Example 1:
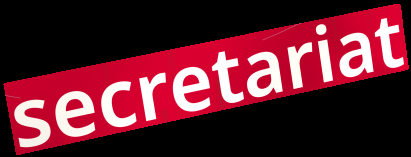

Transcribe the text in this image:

secretariat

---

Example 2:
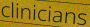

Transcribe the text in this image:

clinicians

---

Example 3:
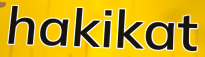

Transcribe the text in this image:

hakikat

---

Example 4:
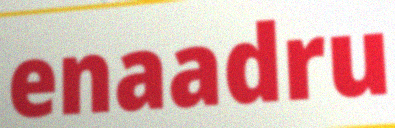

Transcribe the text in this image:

enaadru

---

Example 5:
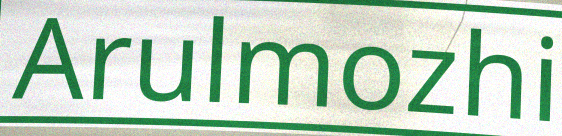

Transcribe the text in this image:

Arulmozhi